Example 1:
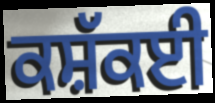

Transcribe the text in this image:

ਕਸ਼ੱਕਈ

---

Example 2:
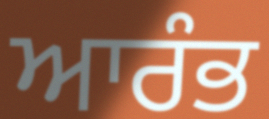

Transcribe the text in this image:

ਆਰੰਭ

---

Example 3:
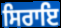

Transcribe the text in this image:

ਸਿਰਾਇ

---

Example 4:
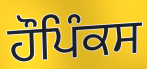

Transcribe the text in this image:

ਹੌਪਿੰਕਸ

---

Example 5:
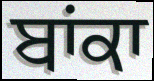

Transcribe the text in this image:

ਬਾਂਕਾ